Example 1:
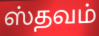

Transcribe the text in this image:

ஸ்தவம்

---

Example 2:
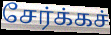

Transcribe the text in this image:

சேர்க்கச்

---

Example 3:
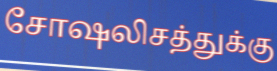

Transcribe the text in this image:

சோஷலிசத்துக்கு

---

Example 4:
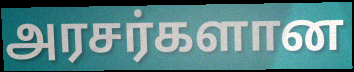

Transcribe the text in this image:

அரசர்களான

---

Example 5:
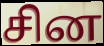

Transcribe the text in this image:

சின